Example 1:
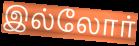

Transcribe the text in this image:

இல்லோர்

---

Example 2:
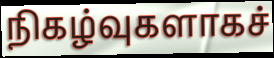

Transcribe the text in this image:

நிகழ்வுகளாகச்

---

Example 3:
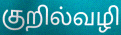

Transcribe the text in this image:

குறில்வழி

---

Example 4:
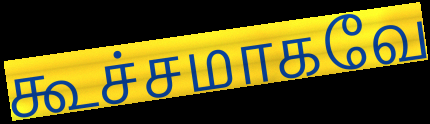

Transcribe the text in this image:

கூச்சமாகவே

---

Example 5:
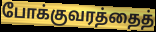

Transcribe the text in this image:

போக்குவரத்தைத்